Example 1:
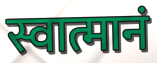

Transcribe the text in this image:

स्वात्मानं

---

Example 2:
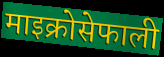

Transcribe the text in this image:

माइक्रोसेफाली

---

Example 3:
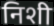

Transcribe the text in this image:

निशी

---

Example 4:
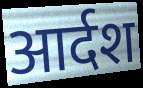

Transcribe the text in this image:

आर्दश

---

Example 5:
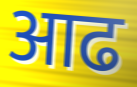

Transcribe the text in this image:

आढ